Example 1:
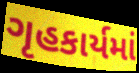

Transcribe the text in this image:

ગૃહકાર્યમાં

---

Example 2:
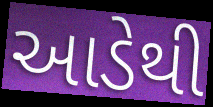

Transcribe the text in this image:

આડેથી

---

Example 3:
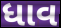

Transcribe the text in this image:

ધાવ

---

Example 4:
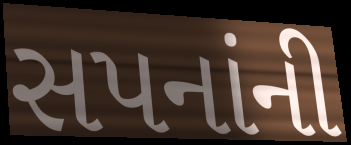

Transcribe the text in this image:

સપનાંની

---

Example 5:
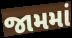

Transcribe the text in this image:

જામમાં